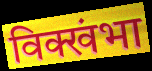
विक्खंभा